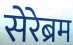
सेरेब्रम